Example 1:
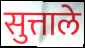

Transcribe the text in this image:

सुत्ताले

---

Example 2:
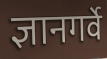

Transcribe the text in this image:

ज्ञानगर्वे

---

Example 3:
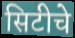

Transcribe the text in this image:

सिटीचे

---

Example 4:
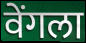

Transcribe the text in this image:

वेंगला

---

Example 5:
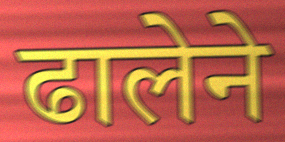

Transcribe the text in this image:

ढालेने